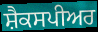
ਸ਼ੈਕਸਪੀਅਰ